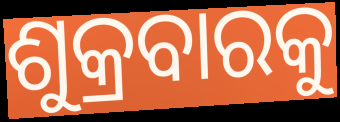
ଶୁକ୍ରବାରକୁ